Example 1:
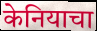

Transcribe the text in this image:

केनियाचा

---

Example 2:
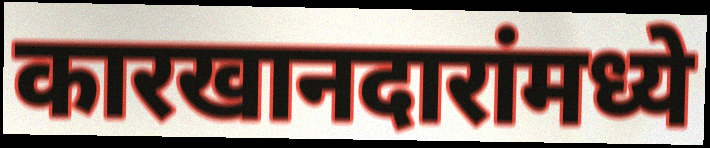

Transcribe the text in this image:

कारखानदारांमध्ये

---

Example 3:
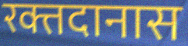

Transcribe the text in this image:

रक्तदानास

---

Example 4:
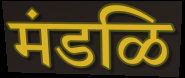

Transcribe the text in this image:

मंडळि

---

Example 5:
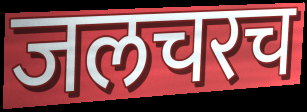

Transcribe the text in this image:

जलचरच